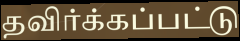
தவிர்க்கப்பட்டு